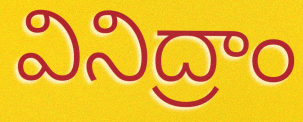
వినిద్రాం